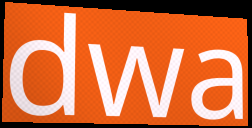
dwa